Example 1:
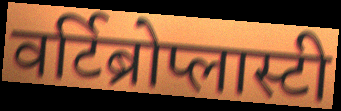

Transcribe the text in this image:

वर्टिब्रोप्लास्टी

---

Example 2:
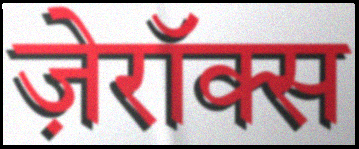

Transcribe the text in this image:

ज़ेरॉक्स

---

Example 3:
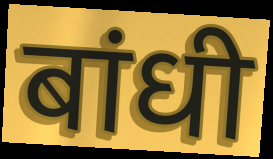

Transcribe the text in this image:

बांधी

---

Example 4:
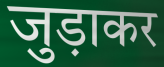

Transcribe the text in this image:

जुड़ाकर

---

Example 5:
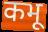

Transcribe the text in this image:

कभू